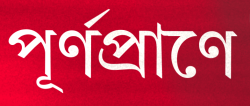
পূর্ণপ্রাণে